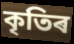
কৃতিৰ